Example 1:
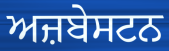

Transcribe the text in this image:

ਅਜ਼ਬੇਸਟਨ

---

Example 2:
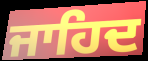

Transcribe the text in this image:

ਜਾਹਿਦ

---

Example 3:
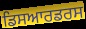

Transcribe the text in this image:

ਡਿਸਆਰਡਰਸ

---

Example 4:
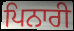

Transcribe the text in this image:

ਪਿਨਾਰੀ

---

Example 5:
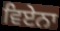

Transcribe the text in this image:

ਵਿਏਨਾ